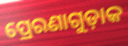
ପ୍ରେରଣାଗୁଡ଼ାକ